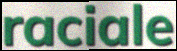
raciale